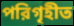
পরিগৃহীত